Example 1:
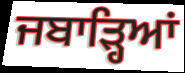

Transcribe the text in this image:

ਜਬਾੜ੍ਹਿਆਂ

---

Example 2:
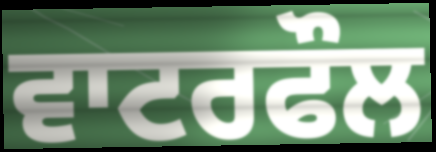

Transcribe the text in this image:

ਵਾਟਰਫੌਲ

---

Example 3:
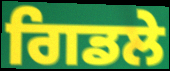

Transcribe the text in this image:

ਗਿਡਲੇ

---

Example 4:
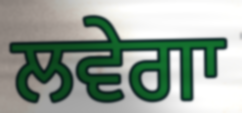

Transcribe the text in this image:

ਲਵੇਗਾ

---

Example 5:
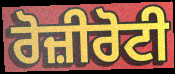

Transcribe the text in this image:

ਰੋਜ਼ੀਰੋਟੀ